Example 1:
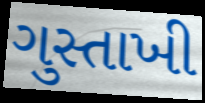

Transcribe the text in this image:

ગુસ્તાખી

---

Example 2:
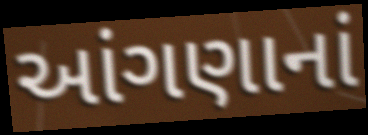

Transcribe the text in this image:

આંગણાનાં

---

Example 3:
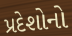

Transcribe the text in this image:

પ્રદેશોનો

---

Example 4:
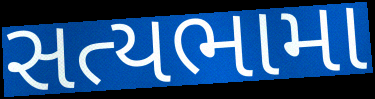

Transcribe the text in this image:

સત્યભામા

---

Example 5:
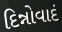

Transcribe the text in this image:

દિન્નોવાદં